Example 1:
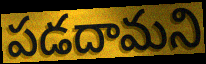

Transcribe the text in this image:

పడదామని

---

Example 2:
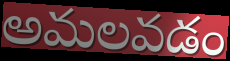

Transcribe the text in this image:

అమలవడం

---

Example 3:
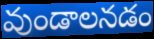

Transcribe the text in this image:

వుండాలనడం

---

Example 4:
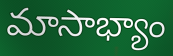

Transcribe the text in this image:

మాసాభ్యాం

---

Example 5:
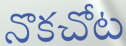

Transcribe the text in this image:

నొకచోట